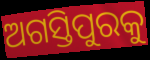
ଅଗସ୍ତିପୁରକୁ